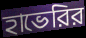
হাভেরির